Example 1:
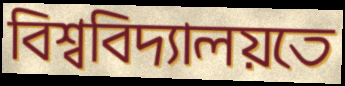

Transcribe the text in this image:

বিশ্ববিদ্যালয়তে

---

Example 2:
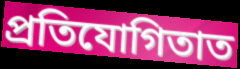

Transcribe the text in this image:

প্ৰতিযোগিতাত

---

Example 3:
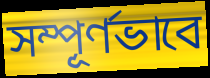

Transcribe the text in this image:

সম্পূৰ্ণভাবে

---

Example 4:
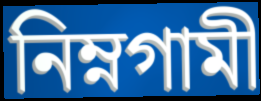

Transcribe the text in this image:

নিম্নগামী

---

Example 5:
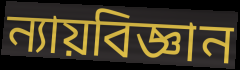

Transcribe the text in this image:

ন্যায়বিজ্ঞান